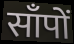
साँपों